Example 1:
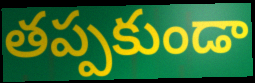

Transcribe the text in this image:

తప్పకుండా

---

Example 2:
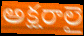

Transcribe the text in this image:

అక్షరాలై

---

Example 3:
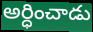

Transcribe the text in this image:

అర్ధించాడు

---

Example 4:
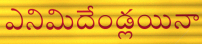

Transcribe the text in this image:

ఎనిమిదేండ్లయినా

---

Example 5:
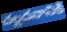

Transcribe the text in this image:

చల్లదనానికి